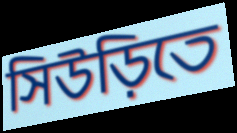
সিউড়িতে